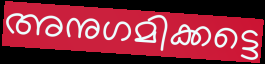
അനുഗമിക്കട്ടെ